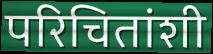
परिचितांशी